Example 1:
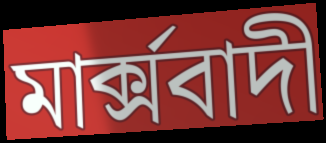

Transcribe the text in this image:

মাৰ্ক্সবাদী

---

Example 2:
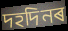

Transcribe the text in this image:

দহদিনৰ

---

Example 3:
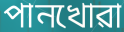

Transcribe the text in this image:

পানখোৱা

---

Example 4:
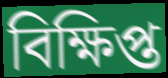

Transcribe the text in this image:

বিক্ষিপ্ত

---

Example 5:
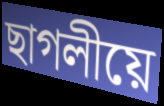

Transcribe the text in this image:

ছাগলীয়ে